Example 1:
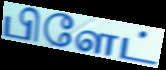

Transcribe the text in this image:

பிளேட்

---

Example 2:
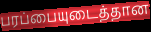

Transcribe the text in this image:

பரப்பையுடைத்தான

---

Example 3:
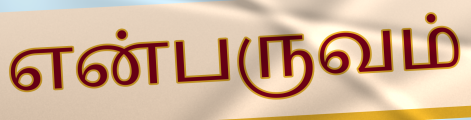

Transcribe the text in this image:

என்பருவம்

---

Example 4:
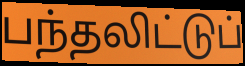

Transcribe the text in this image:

பந்தலிட்டுப்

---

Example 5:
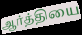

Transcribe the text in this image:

ஆர்த்தியை